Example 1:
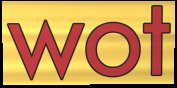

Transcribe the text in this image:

wot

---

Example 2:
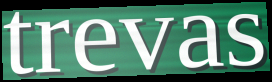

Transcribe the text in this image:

trevas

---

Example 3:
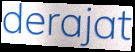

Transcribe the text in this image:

derajat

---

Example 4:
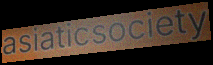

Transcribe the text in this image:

asiaticsociety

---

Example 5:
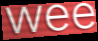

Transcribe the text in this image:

wee